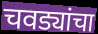
चवड्यांचा